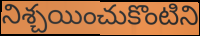
నిశ్చయించుకొంటిని